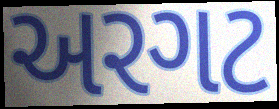
અરગટ